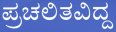
ಪ್ರಚಲಿತವಿದ್ದ